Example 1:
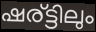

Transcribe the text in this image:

ഷര്ട്ടിലും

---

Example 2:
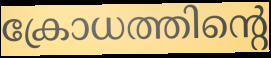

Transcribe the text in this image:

ക്രോധത്തിന്റെ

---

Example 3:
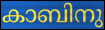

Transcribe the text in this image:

കാബിനു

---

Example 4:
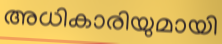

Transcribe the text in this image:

അധികാരിയുമായി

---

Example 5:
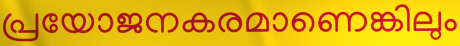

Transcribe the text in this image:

പ്രയോജനകരമാണെങ്കിലും